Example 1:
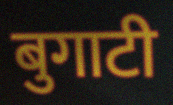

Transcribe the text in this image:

बुगाटी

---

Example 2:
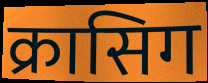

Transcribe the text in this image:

क्रासिग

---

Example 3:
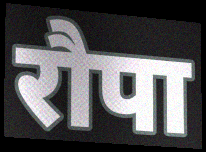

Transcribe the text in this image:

रौपा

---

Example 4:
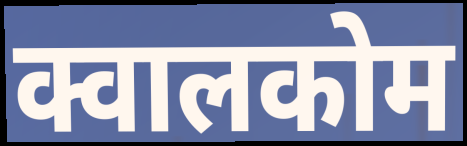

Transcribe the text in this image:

क्वालकोम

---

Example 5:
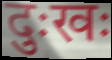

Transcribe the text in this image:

दुःखः